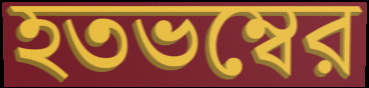
হতভম্বের